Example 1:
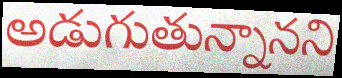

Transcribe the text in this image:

అడుగుతున్నానని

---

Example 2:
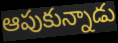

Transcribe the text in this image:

ఆపుకున్నాడు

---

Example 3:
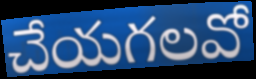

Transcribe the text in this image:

చేయగలవో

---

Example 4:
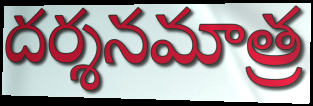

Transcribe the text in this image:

దర్శనమాత్ర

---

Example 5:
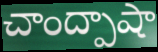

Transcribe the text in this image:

చాంద్పాషా